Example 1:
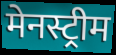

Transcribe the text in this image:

मेनस्ट्रीम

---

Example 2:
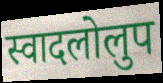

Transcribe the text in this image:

स्वादलोलुप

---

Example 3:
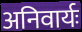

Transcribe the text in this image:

अनिवार्यः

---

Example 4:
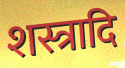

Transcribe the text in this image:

शस्त्रादि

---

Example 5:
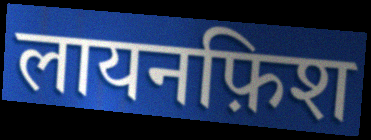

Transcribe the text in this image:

लायनफ़िश